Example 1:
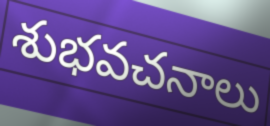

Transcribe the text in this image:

శుభవచనాలు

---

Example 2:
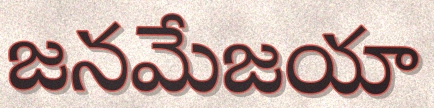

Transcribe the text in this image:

జనమేజయా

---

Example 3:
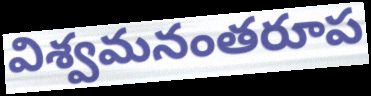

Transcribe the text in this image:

విశ్వమనంతరూప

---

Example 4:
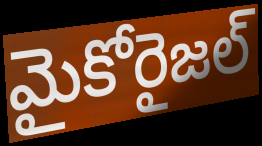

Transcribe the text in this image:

మైకోరైజల్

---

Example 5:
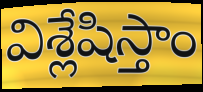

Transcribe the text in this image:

విశ్లేషిస్తాం